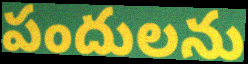
పందులను